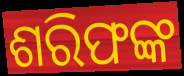
ଶରିଫଙ୍କ